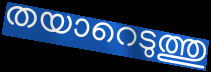
തയാറെടുത്തു